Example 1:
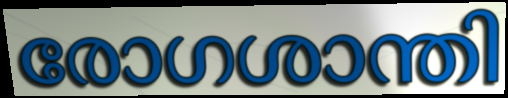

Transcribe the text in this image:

രോഗശാന്തി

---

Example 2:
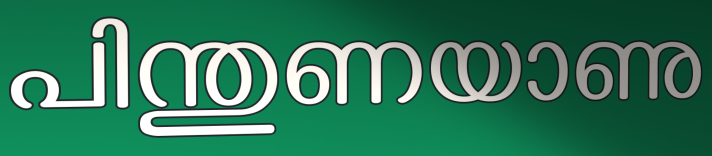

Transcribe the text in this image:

പിന്തുണയാണു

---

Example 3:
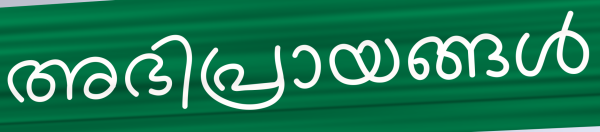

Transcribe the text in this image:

അഭിപ്രായങ്ങൾ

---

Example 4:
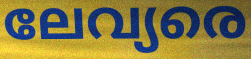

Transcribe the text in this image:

ലേവ്യരെ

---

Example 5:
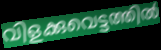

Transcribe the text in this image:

വിളക്കുവെട്ടത്തിൽ